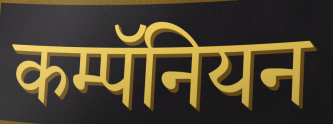
कम्पॅनियन